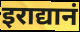
इराद्यानं